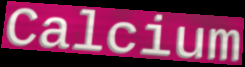
Calcium